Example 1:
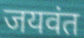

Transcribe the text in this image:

जयवंत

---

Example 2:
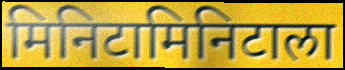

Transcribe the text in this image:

मिनिटामिनिटाला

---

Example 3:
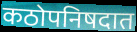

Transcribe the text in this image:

कठोपनिषदात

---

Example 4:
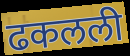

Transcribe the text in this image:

ढकलली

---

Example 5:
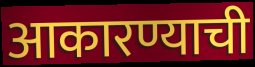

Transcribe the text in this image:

आकारण्याची